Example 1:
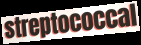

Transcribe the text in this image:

streptococcal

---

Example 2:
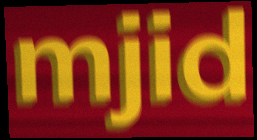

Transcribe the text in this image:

mjid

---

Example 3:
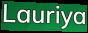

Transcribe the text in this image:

Lauriya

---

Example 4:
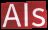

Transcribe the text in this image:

AIs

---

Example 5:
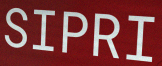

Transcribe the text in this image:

SIPRI